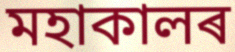
মহাকালৰ